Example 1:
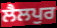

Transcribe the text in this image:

ਲੈਲਪੁਰ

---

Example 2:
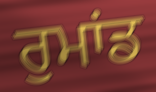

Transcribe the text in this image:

ਰੁਮਾਂਡ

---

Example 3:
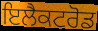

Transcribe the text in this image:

ਇਲੈਕਟਰੋਡ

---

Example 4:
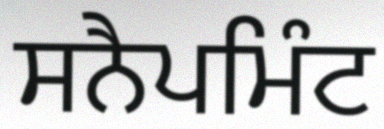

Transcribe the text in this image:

ਸਨੈਪਮਿੰਟ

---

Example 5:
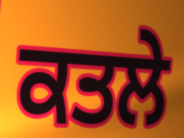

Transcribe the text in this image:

ਕਤਲੇ